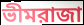
ভীমরাজা